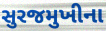
સુરજમુખીના